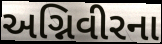
અગ્નિવીરના